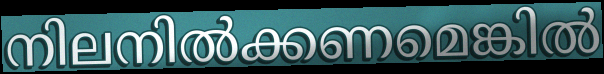
നിലനിൽക്കണമെങ്കിൽ